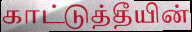
காட்டுத்தீயின்